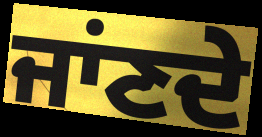
ਜਾਂਣਦੇ